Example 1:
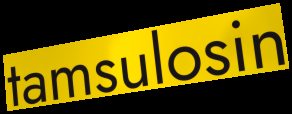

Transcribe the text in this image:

tamsulosin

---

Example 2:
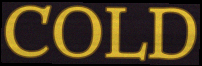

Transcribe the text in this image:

COLD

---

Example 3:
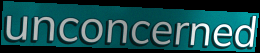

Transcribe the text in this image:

unconcerned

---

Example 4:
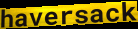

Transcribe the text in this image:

haversack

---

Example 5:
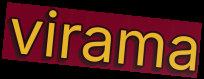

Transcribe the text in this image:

virama